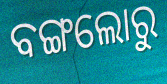
ବଙ୍ଗଲୋରୁ